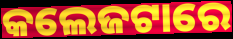
କଲେଜଟାରେ